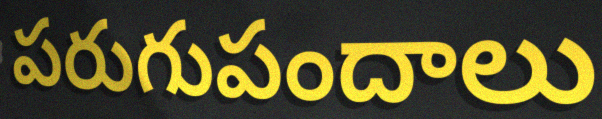
పరుగుపందాలు